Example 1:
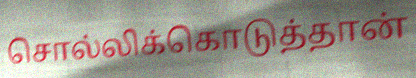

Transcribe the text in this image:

சொல்லிக்கொடுத்தான்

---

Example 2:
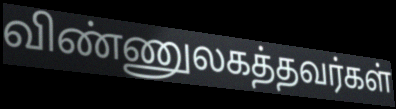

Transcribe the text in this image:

விண்ணுலகத்தவர்கள்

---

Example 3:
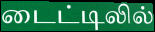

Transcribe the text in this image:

டைட்டிலில்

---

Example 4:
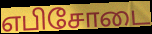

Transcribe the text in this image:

எபிசோடை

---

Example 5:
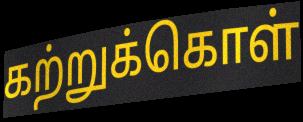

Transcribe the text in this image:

கற்றுக்கொள்